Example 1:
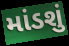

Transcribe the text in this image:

માંડશું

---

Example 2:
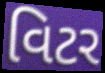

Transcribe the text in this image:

વિટર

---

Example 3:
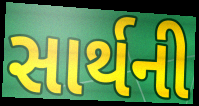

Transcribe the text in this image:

સાર્થની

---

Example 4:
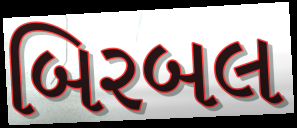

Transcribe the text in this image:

બિરબલ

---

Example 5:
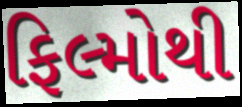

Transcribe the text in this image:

ફિલ્મોથી